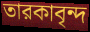
তারকাবৃন্দ